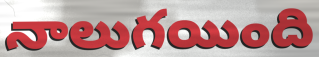
నాలుగయింది